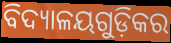
ବିଦ୍ୟାଳୟଗୁଡ଼ିକର